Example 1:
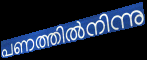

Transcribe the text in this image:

പണത്തിൽനിന്നു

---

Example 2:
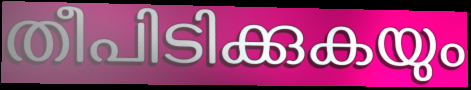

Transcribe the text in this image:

തീപിടിക്കുകയും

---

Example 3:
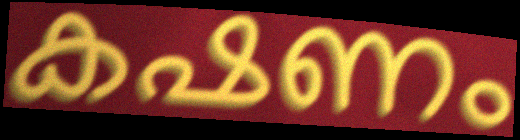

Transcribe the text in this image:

കഷണം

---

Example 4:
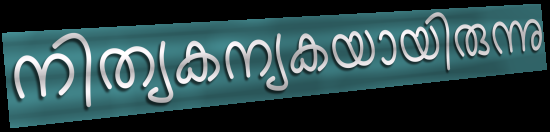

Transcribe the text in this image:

നിത്യകന്യകയായിരുന്നു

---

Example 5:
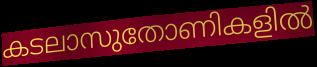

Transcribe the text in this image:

കടലാസുതോണികളിൽ